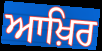
ਆਖ਼ਿਰ